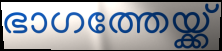
ഭാഗത്തേയ്ക്ക്